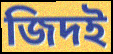
জিদই